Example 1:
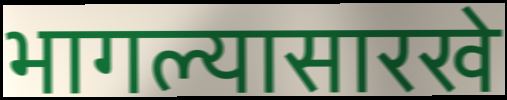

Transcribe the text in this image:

भागल्यासारखे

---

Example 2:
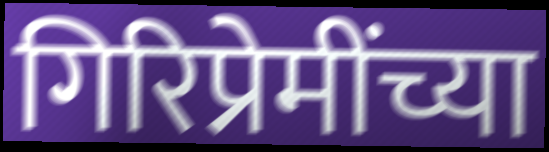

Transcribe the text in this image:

गिरिप्रेमींच्या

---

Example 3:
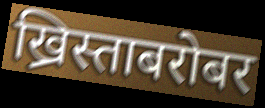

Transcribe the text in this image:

ख्रिस्ताबरोबर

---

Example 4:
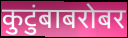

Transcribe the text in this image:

कुटुंबाबरोबर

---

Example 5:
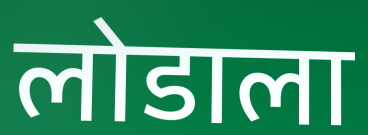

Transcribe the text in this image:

लोडाला